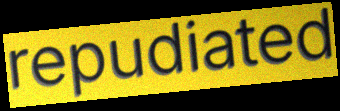
repudiated